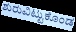
ಶುರುವಿಟ್ಟುಕೊಂಡ